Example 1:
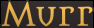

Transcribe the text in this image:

Murr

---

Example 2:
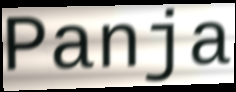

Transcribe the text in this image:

Panja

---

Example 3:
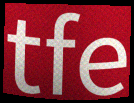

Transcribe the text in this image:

tfe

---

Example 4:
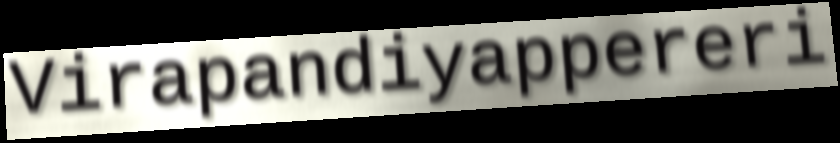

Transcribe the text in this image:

Virapandiyappereri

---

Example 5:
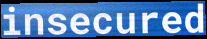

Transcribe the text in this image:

insecured